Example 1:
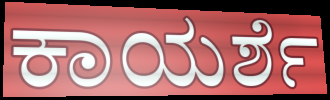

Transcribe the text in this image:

ಕಾಯರ್ಶೆ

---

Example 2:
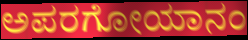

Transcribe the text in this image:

ಅಪರಗೋಯಾನಂ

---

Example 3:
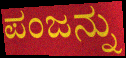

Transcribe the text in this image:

ಪಂಜನ್ನು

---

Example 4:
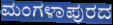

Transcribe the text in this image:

ಮಂಗಳಾಪುರದ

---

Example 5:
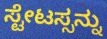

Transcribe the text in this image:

ಸ್ಟೇಟಸ್ಸನ್ನು